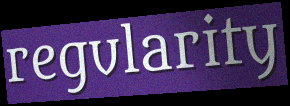
regularity